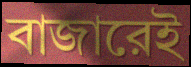
বাজারেই